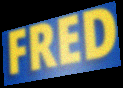
FRED